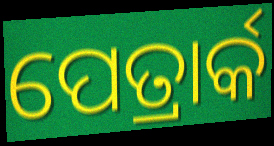
ପେତ୍ରାର୍କ